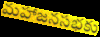
మహాజనసభకు